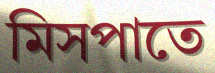
মিসপাতে